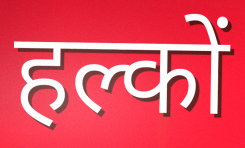
हल्कों